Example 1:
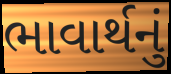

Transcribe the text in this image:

ભાવાર્થનું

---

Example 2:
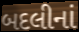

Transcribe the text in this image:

બદલીનાં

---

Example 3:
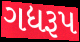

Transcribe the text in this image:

ગદ્યરૂપ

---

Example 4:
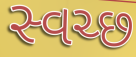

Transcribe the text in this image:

સ્વચ્છ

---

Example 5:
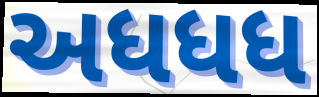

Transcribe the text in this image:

અધધધ